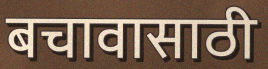
बचावासाठी